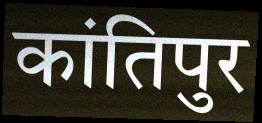
कांतिपुर